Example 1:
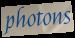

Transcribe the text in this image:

photons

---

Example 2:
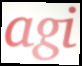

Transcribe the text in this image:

agi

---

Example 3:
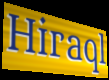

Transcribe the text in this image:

Hiraql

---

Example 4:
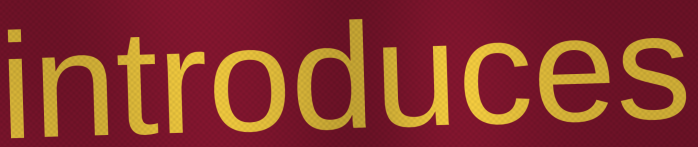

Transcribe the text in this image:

introduces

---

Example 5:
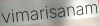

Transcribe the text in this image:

vimarisanam